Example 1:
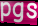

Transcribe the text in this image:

pgs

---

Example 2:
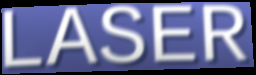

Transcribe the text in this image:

LASER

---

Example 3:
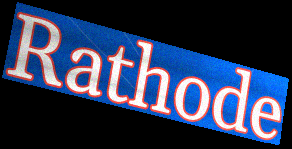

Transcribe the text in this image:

Rathode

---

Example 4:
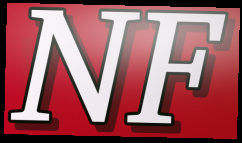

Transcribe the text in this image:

NF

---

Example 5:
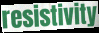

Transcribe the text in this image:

resistivity